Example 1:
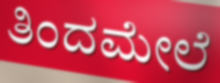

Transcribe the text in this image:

ತಿಂದಮೇಲೆ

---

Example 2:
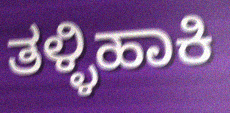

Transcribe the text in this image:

ತಳ್ಳಿಹಾಕಿ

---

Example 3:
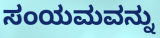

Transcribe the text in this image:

ಸಂಯಮವನ್ನು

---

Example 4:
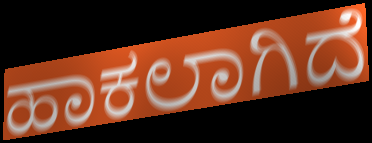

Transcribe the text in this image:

ಹಾಕಲಾಗಿದೆ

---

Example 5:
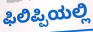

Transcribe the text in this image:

ಫಿಲಿಪ್ಪಿಯಲ್ಲಿ